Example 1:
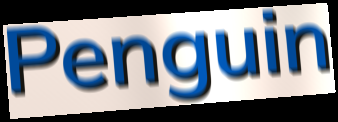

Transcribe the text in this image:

Penguin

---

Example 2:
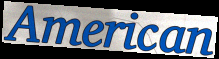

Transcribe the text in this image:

American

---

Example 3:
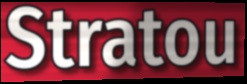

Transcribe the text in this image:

Stratou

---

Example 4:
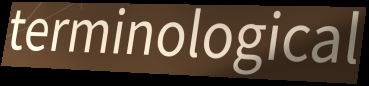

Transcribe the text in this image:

terminological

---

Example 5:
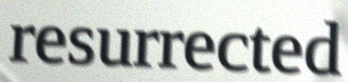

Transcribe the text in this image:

resurrected